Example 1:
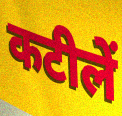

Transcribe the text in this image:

कटीलें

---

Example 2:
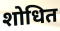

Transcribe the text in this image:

शोधित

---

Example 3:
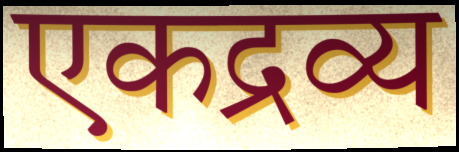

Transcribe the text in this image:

एकद्रव्य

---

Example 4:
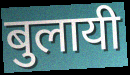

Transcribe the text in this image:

बुलायी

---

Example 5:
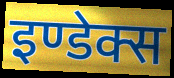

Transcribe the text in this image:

इण्डेक्स